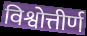
विश्वोत्तीर्ण